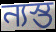
ন্যস্ত